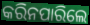
କରିନପାରିଲେ